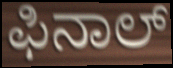
ಫಿನಾಲ್